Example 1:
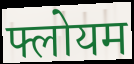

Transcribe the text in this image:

फ्लोयम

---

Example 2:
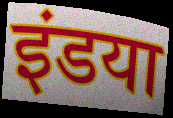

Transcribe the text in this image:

इंडया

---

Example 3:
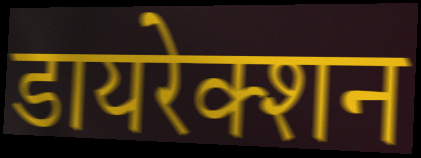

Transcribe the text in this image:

डायरेक्शन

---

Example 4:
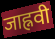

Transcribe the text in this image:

जाह्नवी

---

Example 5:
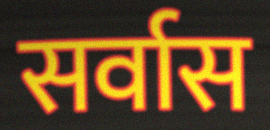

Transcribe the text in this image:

सर्वास